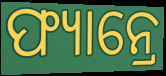
ଫ୍ୟାନ୍ରେ